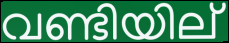
വണ്ടിയില്